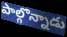
పాల్గొన్నాడు